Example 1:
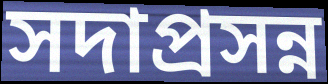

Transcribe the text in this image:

সদাপ্রসন্ন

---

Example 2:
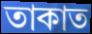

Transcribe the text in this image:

তাকাত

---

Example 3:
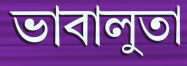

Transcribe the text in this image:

ভাবালুতা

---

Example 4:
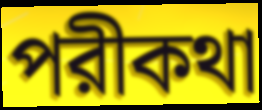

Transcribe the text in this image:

পরীকথা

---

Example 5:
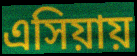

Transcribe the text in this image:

এসিয়ায়